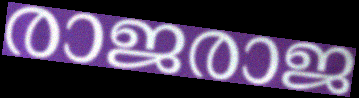
രാജരാജ